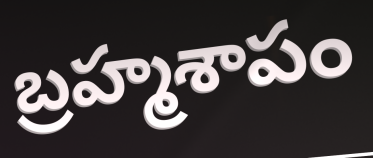
బ్రహ్మశాపం